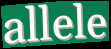
allele